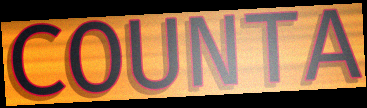
COUNTA